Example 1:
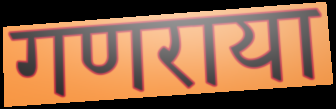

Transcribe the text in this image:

गणराया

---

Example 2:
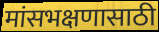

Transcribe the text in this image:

मांसभक्षणासाठी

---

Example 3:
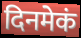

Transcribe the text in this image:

दिनमेकं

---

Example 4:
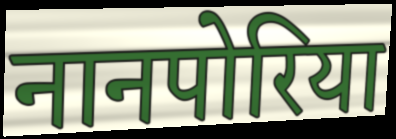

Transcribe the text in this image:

नानपोरिया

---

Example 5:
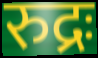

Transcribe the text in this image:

रुद्रः